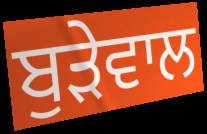
ਬੁੜੇਵਾਲ